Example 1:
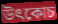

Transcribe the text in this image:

উৎকোচ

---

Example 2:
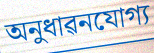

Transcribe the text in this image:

অনুধাৱনযোগ্য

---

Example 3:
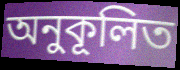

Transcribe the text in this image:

অনুকূলিত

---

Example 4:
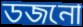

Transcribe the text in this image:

ডজনো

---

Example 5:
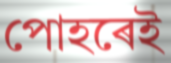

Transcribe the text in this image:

পোহৰেই